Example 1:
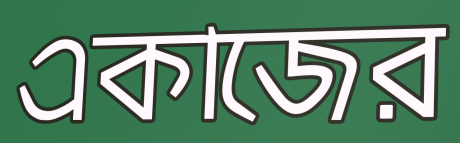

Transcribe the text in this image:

একাজের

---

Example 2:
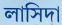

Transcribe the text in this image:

লাসিদা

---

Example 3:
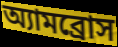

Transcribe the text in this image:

অ্যামব্রোস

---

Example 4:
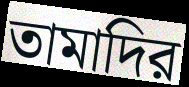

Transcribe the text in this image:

তামাদির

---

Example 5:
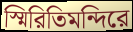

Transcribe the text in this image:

স্মিরিতিমন্দিরে